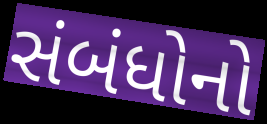
સંબંધોનો